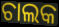
ଚାଲକ